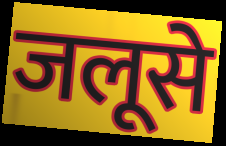
जलूसे